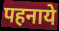
पहनाये